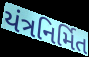
યંત્રનિર્મિત